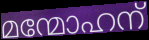
മന്മോഹന്